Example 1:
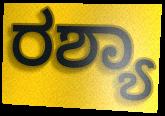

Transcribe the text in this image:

ರಶ್ಯಾ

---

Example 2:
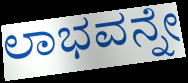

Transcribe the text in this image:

ಲಾಭವನ್ನೇ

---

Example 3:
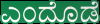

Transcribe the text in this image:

ಎಂದೊಡೆ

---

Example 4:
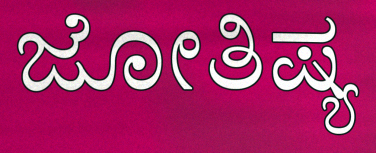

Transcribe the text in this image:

ಜೋತಿಷ್ಯ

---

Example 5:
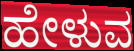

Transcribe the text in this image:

ಹೇಳುವ